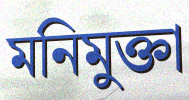
মনিমুক্তা